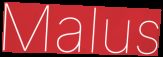
Malus